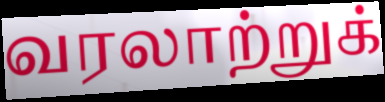
வரலாற்றுக்